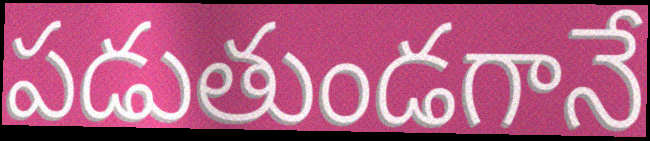
పడుతుండగానే